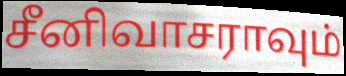
சீனிவாசராவும்